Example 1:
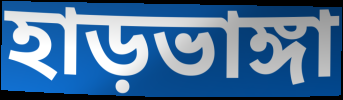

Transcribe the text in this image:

হাড়ভাঙ্গা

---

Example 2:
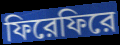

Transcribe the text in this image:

ফিরেফিরে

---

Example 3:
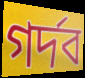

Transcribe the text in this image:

গর্দব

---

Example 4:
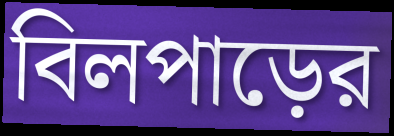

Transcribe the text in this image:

বিলপাড়ের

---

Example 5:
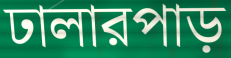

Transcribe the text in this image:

ঢালারপাড়